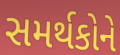
સમર્થકોને